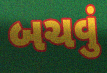
બચવું